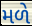
મળે